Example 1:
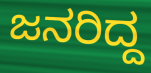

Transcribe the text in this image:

ಜನರಿದ್ದ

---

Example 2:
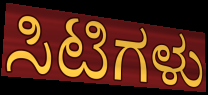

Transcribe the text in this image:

ಸಿಟಿಗಳು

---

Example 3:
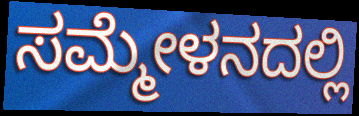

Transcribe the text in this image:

ಸಮ್ಮೇಳನದಲ್ಲಿ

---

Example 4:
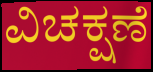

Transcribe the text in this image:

ವಿಚಕ್ಷಣೆ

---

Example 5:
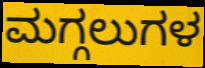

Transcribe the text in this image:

ಮಗ್ಗಲುಗಳ